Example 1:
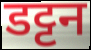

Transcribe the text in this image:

डट्टन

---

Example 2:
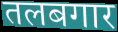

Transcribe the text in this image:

तलबगार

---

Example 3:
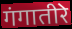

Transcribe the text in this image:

गंगातीरे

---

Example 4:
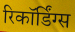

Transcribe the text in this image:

रिकॉर्डिंग्स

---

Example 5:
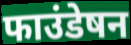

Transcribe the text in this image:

फाउंडेषन